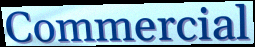
Commercial